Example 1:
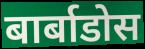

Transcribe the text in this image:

बार्बाडोस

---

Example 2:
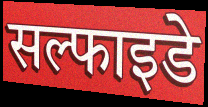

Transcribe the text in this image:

सल्फाइडे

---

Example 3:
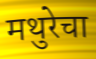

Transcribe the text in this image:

मथुरेचा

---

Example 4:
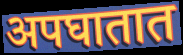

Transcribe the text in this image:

अपघातात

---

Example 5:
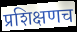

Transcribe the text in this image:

प्रशिक्षणच